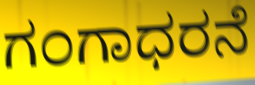
ಗಂಗಾಧರನೆ